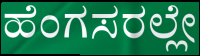
ಹೆಂಗಸರಲ್ಲೇ